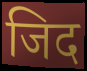
जिद